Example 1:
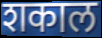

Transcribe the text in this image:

शकाल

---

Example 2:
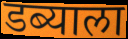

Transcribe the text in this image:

डब्याला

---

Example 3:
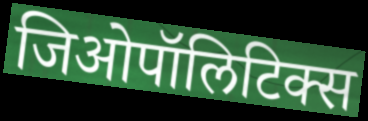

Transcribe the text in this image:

जिओपॉलिटिक्स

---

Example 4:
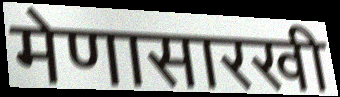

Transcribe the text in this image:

मेणासारखी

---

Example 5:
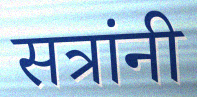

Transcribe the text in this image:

सत्रांनी